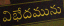
విభేదమును